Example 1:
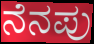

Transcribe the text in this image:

ನೆನಪು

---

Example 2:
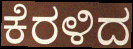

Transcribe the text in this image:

ಕೆರಳಿದ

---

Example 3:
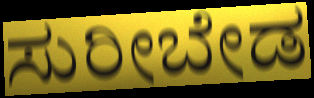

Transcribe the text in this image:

ಸುರೀಬೇಡ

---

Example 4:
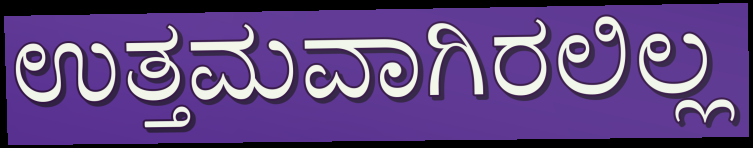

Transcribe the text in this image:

ಉತ್ತಮವಾಗಿರಲಿಲ್ಲ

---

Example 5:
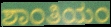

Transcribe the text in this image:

ಶಾಂತಿಯಂ